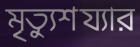
মৃত্যুশয্যার